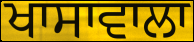
ਖਾਸਾਵਾਲਾ